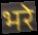
भरे